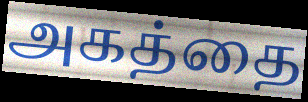
அகத்தை